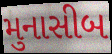
મુનાસીબ